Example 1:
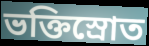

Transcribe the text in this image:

ভক্তিস্রোত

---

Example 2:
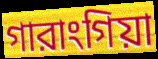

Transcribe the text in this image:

গারাংগিয়া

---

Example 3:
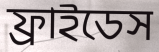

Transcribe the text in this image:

ফ্রাইডেস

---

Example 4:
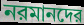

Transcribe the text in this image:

নরমানদের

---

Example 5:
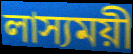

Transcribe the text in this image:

লাস্যময়ী